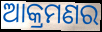
ଆକ୍ରମଣର